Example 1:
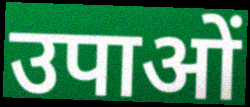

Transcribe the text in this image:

उपाओं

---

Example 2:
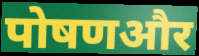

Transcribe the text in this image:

पोषणऔर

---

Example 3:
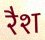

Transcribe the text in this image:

रैश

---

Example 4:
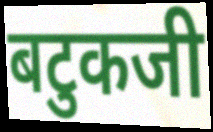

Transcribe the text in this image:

बटुकजी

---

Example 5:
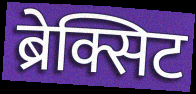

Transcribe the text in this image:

ब्रेक्सिट